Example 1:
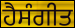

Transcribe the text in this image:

ਹੈਸੰਗੀਤ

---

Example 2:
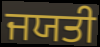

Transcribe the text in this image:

ਜਯਤੀ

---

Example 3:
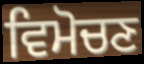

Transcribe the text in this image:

ਵਿਮੋਚਣ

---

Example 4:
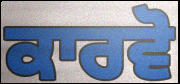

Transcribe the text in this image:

ਕਾਰਵੋ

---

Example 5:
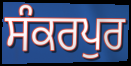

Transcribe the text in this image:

ਸੰਕਰਪੁਰ